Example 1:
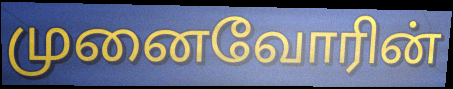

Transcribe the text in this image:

முனைவோரின்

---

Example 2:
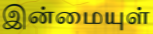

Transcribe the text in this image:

இன்மையுள்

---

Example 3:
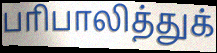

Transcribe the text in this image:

பரிபாலித்துக்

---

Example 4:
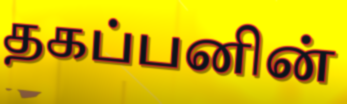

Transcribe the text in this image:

தகப்பனின்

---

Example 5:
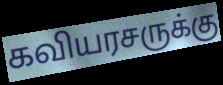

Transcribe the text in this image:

கவியரசருக்கு